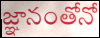
జ్ఞానంతోనో